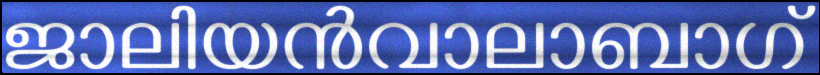
ജാലിയൻവാലാബാഗ്